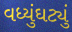
વધ્યુંઘટ્યું